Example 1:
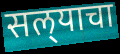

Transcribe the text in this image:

सल्याचा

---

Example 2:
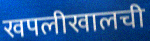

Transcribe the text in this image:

खपलीखालची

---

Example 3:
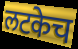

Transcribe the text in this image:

लटकेच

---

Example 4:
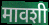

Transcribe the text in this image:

मावशी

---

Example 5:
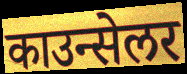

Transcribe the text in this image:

काउन्सेलर